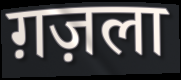
ग़ज़ला